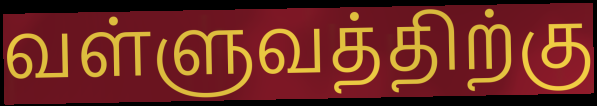
வள்ளுவத்திற்கு